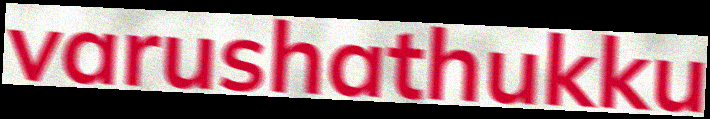
varushathukku